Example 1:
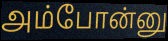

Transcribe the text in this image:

அம்போன்னு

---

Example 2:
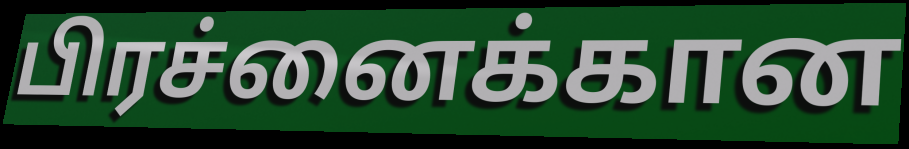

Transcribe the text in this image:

பிரச்னைக்கான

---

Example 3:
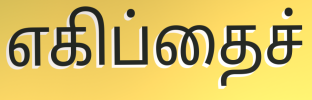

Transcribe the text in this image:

எகிப்தைச்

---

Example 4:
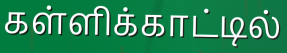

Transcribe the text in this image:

கள்ளிக்காட்டில்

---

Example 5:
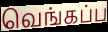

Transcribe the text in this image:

வெங்கப்ப